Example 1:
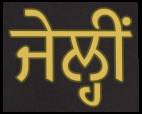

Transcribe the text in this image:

ਜੇਲ੍ਹੀਂ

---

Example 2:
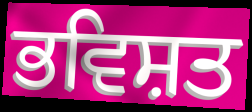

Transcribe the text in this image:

ਭਵਿਸ਼ਤ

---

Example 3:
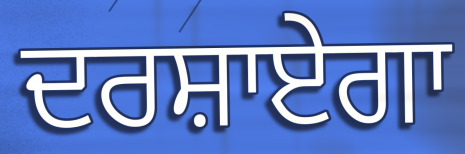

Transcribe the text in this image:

ਦਰਸ਼ਾਏਗਾ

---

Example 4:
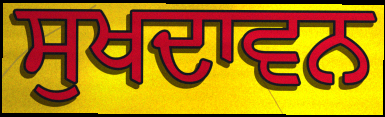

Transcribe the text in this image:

ਸੁਖਦਾਵਨ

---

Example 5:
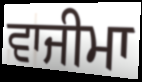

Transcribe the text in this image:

ਵਾਜੀਮਾ